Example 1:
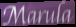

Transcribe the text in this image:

Marula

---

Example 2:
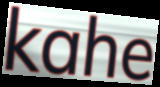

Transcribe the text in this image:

kahe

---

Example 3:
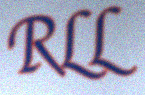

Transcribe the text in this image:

RLL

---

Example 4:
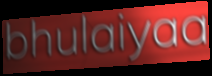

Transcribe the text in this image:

bhulaiyaa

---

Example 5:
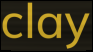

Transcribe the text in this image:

clay